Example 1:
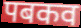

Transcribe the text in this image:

पबकव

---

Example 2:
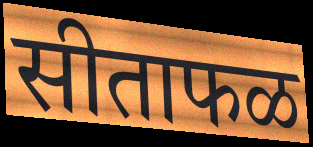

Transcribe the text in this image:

सीताफळ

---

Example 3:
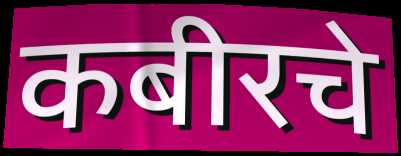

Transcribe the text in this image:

कबीरचे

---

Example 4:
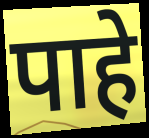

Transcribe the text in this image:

पाहे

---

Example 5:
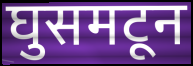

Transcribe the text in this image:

घुसमटून